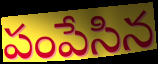
పంపేసిన